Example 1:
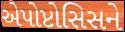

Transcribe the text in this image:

એપોપ્ટોસિસને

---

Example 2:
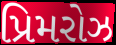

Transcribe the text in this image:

પ્રિમરોઝ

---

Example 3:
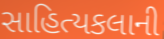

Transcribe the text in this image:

સાહિત્યકલાની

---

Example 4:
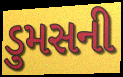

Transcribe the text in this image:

ડુમસની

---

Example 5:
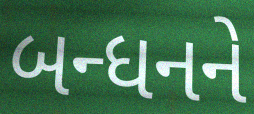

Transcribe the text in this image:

બન્ધનને